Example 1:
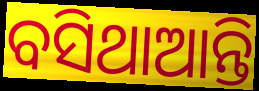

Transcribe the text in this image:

ବସିଥାଆନ୍ତି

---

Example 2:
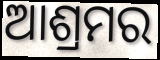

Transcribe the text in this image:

ଆଶ୍ରମର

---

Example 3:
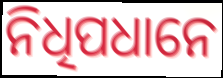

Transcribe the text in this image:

ନିଧିପଧାନେ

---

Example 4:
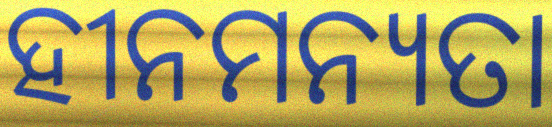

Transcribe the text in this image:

ହୀନମନ୍ୟତା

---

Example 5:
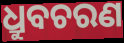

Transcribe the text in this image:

ଧ୍ରୁବଚରଣ